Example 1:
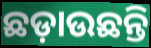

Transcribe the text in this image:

ଛଡ଼ାଉଛନ୍ତି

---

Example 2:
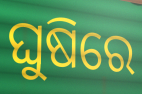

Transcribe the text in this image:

ଘୁଷିରେ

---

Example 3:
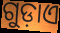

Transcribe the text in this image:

ଗୁଡ଼ାଏ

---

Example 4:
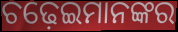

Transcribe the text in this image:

ଚଢ଼େଇମାନଙ୍କର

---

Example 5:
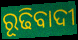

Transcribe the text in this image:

ରୂଢିବାଦୀ